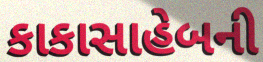
કાકાસાહેબની